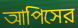
আপিসের